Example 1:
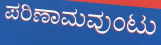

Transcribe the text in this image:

ಪರಿಣಾಮವುಂಟು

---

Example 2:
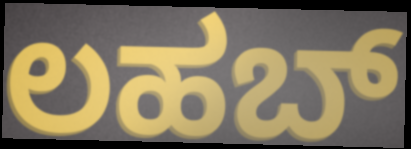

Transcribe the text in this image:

ಲಹಬ್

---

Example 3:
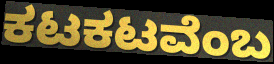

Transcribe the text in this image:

ಕಟಕಟವೆಂಬ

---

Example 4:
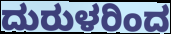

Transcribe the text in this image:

ದುರುಳರಿಂದ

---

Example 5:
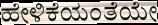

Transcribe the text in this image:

ಹೇಳಿಕೆಯಂತೆಯೇ